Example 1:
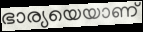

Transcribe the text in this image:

ഭാര്യയെയാണ്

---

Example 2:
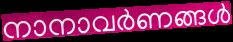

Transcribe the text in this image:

നാനാവർണങ്ങൾ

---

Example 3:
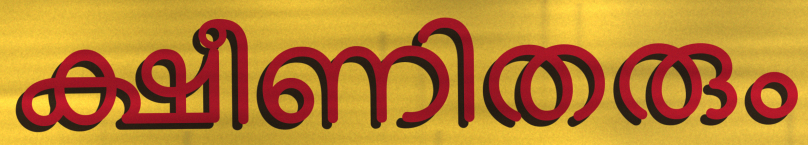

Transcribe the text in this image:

ക്ഷീണിതരും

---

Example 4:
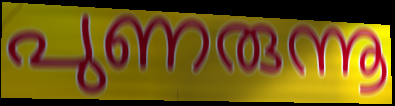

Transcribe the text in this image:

പുണരുന്നൂ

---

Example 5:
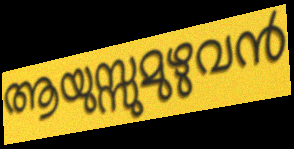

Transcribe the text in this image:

ആയുസ്സുമുഴുവൻ